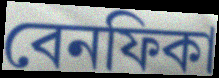
বেনফিকা